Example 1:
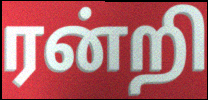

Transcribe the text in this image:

ரன்றி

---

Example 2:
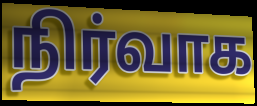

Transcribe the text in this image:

நிர்வாக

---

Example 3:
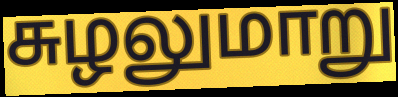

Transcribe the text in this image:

சுழலுமாறு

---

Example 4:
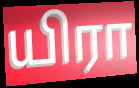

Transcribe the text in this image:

யிரா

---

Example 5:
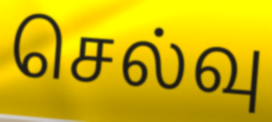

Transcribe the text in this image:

செல்வு